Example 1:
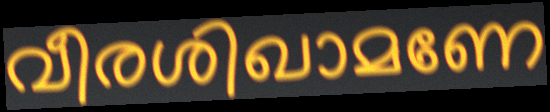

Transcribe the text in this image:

വീരശിഖാമണേ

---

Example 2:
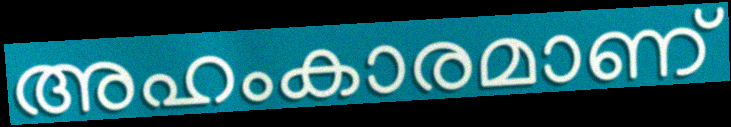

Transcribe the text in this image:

അഹംകാരമാണ്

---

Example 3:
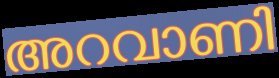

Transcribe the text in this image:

അറവാണി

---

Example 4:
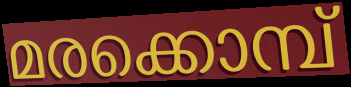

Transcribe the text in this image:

മരക്കൊമ്പ്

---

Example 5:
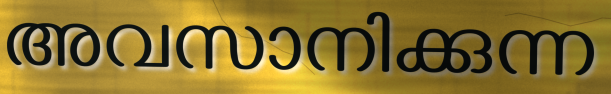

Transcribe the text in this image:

അവസാനിക്കുന്ന